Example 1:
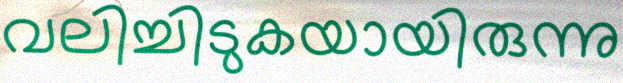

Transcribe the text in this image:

വലിച്ചിടുകയായിരുന്നു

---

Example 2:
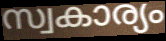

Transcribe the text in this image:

സ്വകാര്യം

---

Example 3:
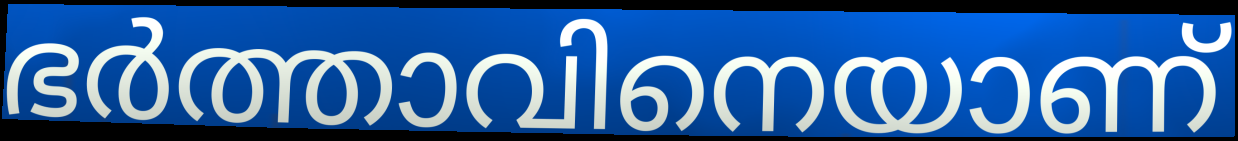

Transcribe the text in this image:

ഭർത്താവിനെയാണ്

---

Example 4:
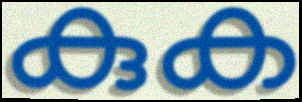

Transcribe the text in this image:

കുക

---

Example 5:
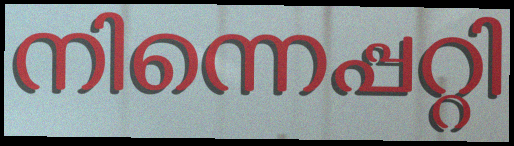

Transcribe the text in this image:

നിന്നെപ്പറ്റി